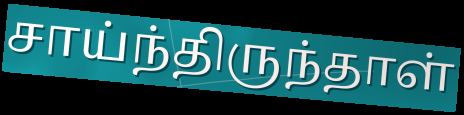
சாய்ந்திருந்தாள்